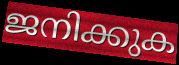
ജനിക്കുക